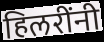
हिलरींनी